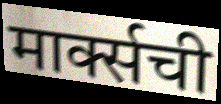
मार्क्सची